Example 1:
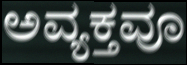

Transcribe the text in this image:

ಅವ್ಯಕ್ತವೂ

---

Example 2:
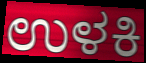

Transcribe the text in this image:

ಉಳಕಿ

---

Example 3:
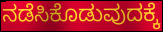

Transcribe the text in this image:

ನಡೆಸಿಕೊಡುವುದಕ್ಕೆ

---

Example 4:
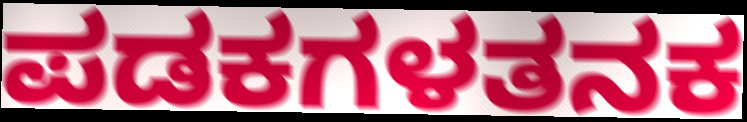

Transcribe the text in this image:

ಪಡಕಗಳತನಕ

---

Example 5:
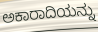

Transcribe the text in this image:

ಅಕಾರಾದಿಯನ್ನು